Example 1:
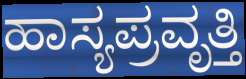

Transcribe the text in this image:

ಹಾಸ್ಯಪ್ರವೃತ್ತಿ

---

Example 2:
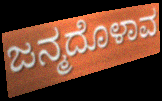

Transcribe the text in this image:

ಜನ್ಮದೊಳಾವ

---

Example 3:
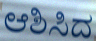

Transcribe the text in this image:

ಆಶಿಸಿದ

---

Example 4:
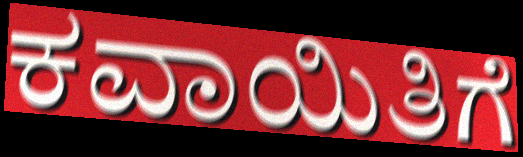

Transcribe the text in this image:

ಕವಾಯಿತಿಗೆ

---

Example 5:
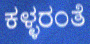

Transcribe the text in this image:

ಕಳ್ಳರಂತೆ